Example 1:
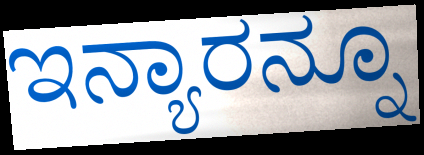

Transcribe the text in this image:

ಇನ್ಯಾರನ್ನೂ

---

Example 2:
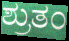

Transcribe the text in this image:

ಶ್ರುತಂ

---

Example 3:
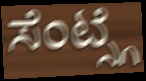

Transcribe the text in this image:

ಸೆಂಟ್ಸ್ಗೆ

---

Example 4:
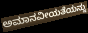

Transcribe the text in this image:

ಅಮಾನವೀಯತೆಯನ್ನು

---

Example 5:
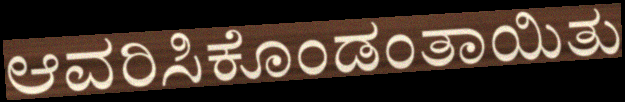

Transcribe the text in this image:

ಆವರಿಸಿಕೊಂಡಂತಾಯಿತು